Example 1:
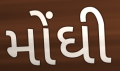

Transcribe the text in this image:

મોંઘી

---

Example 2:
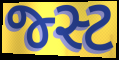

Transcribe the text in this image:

જ્સ્ટ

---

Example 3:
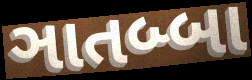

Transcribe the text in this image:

ઞાતબ્બા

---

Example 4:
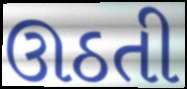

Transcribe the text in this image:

ઊઠતી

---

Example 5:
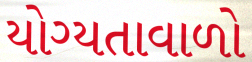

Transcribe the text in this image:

યોગ્યતાવાળો